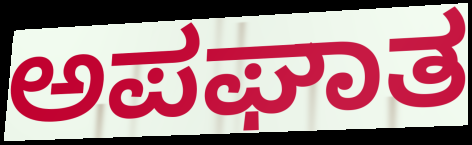
ಅಪಘಾತ